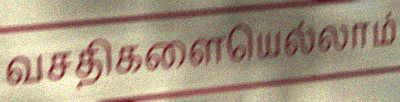
வசதிகளையெல்லாம்